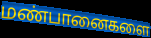
மண்பானைகளை